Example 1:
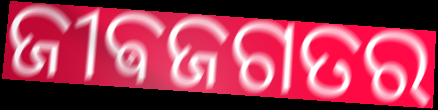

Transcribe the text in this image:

ଜୀଵଜଗତର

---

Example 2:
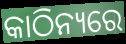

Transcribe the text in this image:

କାଠିନ୍ୟରେ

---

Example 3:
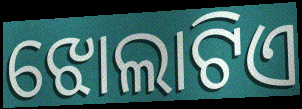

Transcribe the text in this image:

ଝୋଲାଟିଏ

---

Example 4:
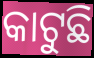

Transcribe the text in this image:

କାଟୁଛି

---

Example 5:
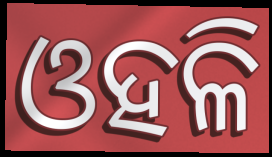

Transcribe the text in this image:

ଓହଳି